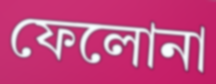
ফেলোনা